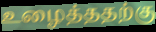
உழைத்ததற்கு